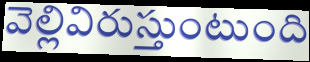
వెల్లివిరుస్తుంటుంది